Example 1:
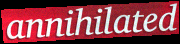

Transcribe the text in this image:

annihilated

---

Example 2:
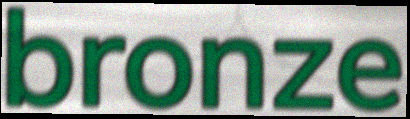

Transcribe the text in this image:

bronze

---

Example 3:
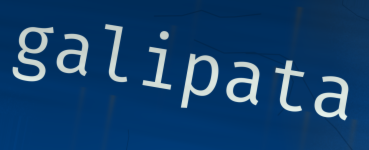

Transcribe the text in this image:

galipata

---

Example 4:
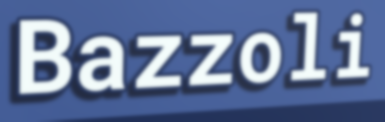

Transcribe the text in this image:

Bazzoli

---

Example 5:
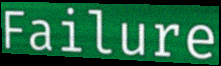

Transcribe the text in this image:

Failure